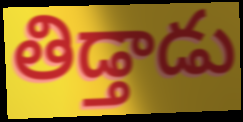
తిడ్తాడు